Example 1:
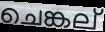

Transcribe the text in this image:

ചെങ്കല്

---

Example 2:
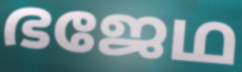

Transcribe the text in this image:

ഭജേഥ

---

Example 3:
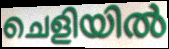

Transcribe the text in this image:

ചെളിയിൽ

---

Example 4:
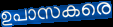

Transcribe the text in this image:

ഉപാസകരെ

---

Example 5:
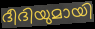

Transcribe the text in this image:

ദീദിയുമായി